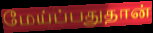
மேய்ப்பதுதான்